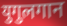
युगुलगान